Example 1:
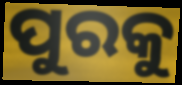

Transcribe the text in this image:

ପୁରକୁ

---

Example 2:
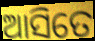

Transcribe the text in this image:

ଆସିତେ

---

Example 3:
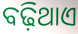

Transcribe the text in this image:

ବଢ଼ିଥାଏ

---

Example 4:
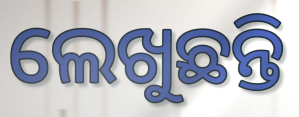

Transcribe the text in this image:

ଲେଖୁଛନ୍ତି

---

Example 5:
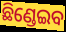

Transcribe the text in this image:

ଛିଣ୍ଡେଇବ